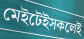
মেইটেইসকলেই